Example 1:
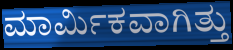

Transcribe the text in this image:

ಮಾರ್ಮಿಕವಾಗಿತ್ತು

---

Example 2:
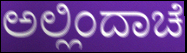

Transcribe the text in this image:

ಅಲ್ಲಿಂದಾಚೆ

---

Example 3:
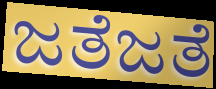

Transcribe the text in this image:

ಜತೆಜತೆ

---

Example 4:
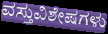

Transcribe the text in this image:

ವಸ್ತುವಿಶೇಷಗಳು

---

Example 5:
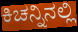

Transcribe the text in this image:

ಕಿಚನ್ನಿನಲ್ಲಿ